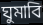
ঘুমাবি